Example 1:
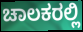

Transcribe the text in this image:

ಚಾಲಕರಲ್ಲಿ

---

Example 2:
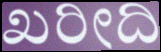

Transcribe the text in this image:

ಖರೀದಿ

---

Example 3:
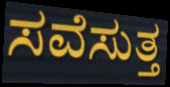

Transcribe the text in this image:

ಸವೆಸುತ್ತ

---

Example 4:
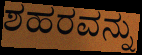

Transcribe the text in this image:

ಶಹರವನ್ನು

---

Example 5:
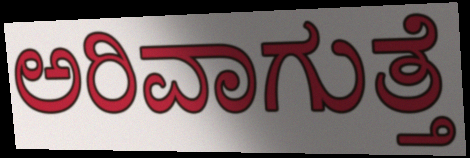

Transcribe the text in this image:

ಅರಿವಾಗುತ್ತೆ